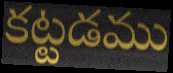
కట్టడము